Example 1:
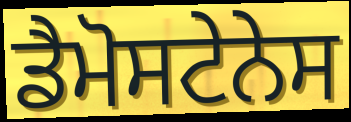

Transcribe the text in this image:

ਡੈਮੋਸਟੇਨੇਸ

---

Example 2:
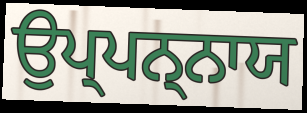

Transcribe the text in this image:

ਉਪ੍ਪਨ੍ਨਾਯ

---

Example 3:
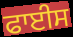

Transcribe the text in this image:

ਫਾਈਸ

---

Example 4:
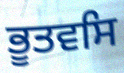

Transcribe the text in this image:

ਭੂਤਵਸਿ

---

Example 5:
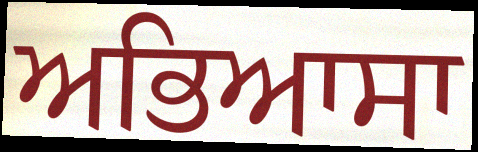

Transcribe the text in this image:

ਅਭਿਆਸਾ